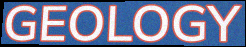
GEOLOGY